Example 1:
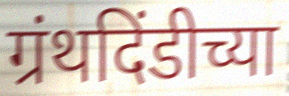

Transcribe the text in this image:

ग्रंथदिंडीच्या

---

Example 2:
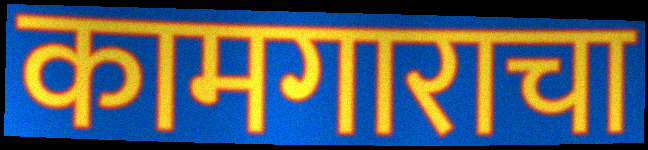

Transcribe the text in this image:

कामगाराचा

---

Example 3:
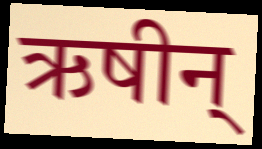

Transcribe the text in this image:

ऋषीन्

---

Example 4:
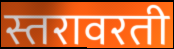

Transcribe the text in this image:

स्तरावरती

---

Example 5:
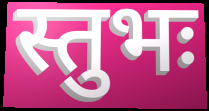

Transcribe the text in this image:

स्तुभः